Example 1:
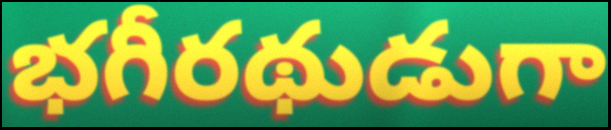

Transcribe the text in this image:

భగీరథుడుగా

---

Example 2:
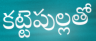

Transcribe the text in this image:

కట్టెపుల్లతో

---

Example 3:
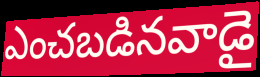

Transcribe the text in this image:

ఎంచబడినవాడై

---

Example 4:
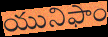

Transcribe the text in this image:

యునిఫాం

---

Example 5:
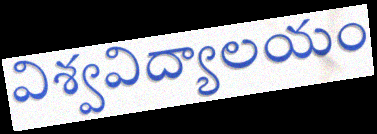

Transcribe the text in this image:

విశ్వవిద్యాలయం